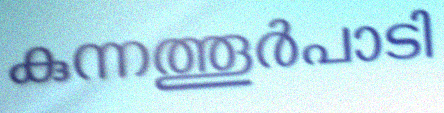
കുന്നത്തൂർപാടി